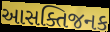
આસક્તિજનક